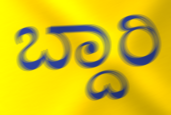
ಬ್ದಾರಿ